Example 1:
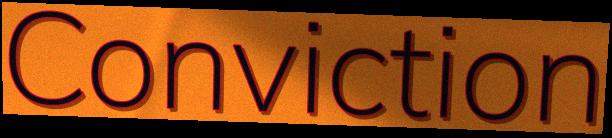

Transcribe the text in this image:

Conviction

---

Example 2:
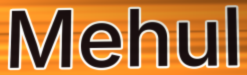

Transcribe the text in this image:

Mehul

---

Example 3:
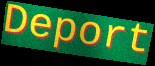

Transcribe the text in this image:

Deport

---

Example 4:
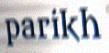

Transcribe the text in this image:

parikh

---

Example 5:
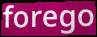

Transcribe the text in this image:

forego